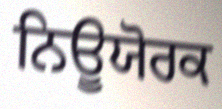
ਨਿਊਯੋਰਕ